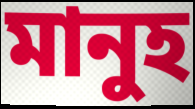
মানুহ